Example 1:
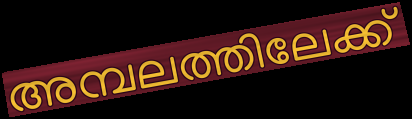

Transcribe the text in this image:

അമ്പലത്തിലേക്ക്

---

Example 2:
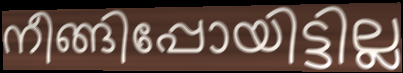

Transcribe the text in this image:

നീങ്ങിപ്പോയിട്ടില്ല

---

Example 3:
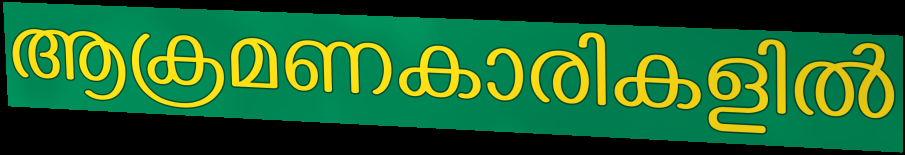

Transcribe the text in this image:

ആക്രമണകാരികളിൽ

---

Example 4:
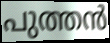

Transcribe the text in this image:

പുത്തൻ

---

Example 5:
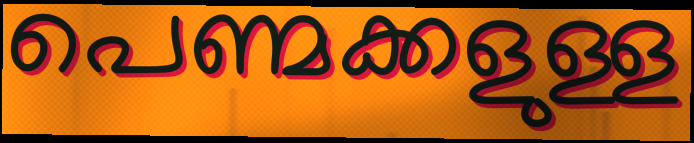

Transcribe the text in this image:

പെണ്മക്കളുള്ള